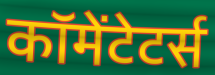
कॉमेंटेटर्स